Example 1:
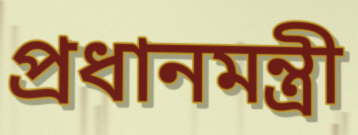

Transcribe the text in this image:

প্ৰধানমন্ত্ৰী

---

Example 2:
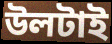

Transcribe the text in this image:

উলটাই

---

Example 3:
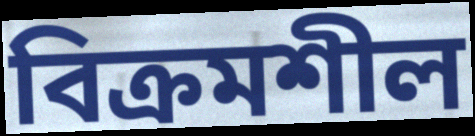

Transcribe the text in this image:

বিক্ৰমশীল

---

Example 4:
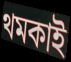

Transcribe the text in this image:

থমকাই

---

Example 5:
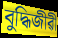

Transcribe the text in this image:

বুদ্ধিজীৱী